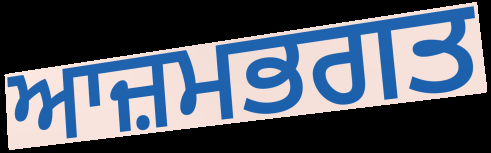
ਆਜ਼ਮਭਗਤ